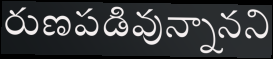
రుణపడివున్నానని